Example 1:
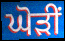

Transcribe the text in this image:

ਘੋੜੀਂ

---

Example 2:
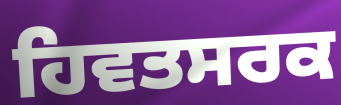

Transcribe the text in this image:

ਹਿਵਤਸਰਕ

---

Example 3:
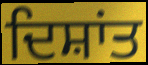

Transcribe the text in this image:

ਦਿਸ਼ਾਂਤ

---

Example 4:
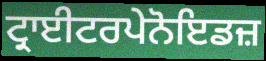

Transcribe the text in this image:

ਟ੍ਰਾਈਟਰਪੇਨੋਇਡਜ਼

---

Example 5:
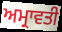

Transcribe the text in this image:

ਅਮ੍ਰਾਵਤੀ